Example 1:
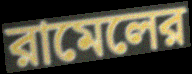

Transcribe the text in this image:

রামেলের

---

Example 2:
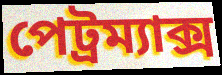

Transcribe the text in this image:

পেট্রম্যাক্স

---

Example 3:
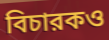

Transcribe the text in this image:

বিচারকও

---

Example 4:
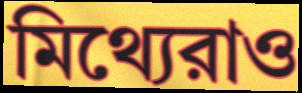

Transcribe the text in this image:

মিথ্যেরাও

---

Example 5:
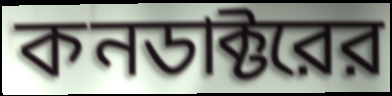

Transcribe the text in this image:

কনডাক্টরের